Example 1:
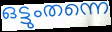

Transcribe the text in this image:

ഒട്ടുംതന്നെ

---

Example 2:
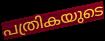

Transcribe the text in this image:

പത്രികയുടെ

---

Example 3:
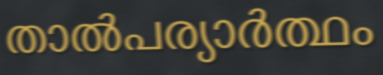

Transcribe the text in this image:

താൽപര്യാർത്ഥം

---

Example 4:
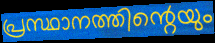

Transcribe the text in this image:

പ്രസ്ഥാനത്തിന്റെയും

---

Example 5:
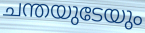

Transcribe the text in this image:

ചന്തയുടേയും